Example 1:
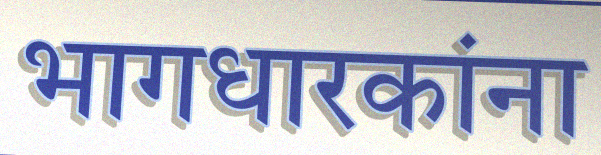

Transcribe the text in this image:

भागधारकांना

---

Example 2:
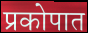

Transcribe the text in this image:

प्रकोपात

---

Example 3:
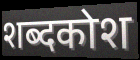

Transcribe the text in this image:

शब्दकोश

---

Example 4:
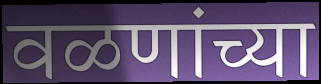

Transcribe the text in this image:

वळणांच्या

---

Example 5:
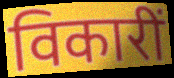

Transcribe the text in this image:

विकारीं